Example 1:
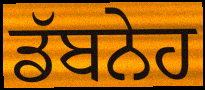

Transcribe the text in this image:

ਡੱਬਨੇਹ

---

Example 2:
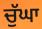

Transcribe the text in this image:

ਚੁੱਘਾ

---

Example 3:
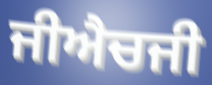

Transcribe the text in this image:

ਜੀਐਚਜੀ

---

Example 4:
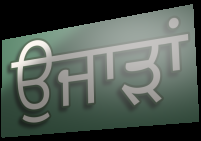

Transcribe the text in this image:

ਉਜਾੜਾਂ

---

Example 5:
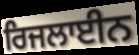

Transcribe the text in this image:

ਰਿਜਲਾਈਨ